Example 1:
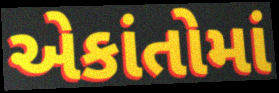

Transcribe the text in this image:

એકાંતોમાં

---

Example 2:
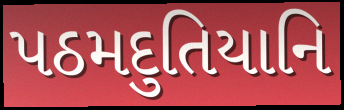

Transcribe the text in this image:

પઠમદુતિયાનિ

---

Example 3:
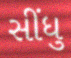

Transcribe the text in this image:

સીંધુ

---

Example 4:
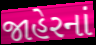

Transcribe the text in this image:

જાહેરનાં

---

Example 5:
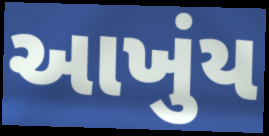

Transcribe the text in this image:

આખુંય